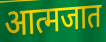
आत्मजात